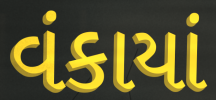
વંકાયાં